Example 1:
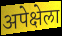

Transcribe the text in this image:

अपेक्षेला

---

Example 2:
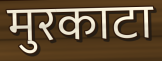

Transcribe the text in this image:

मुरकाटा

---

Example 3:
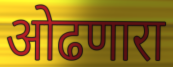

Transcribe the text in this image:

ओढणारा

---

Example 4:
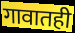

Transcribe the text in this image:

गावातही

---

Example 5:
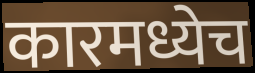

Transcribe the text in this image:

कारमध्येच